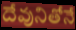
దేవునితోనే